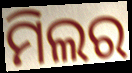
ମିଲର